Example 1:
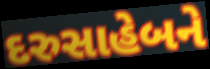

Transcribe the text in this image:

દરુસાહેબને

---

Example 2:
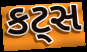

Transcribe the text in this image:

કટ્સ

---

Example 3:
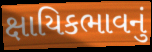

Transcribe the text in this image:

ક્ષાયિકભાવનું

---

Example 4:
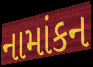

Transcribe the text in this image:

નામાંકન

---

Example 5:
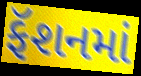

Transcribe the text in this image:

ફૅશનમાં